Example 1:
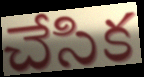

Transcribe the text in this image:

చేసిక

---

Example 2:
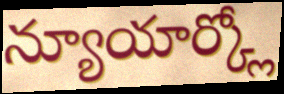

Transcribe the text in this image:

న్యూయార్క్లో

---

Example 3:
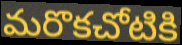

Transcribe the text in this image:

మరొకచోటికి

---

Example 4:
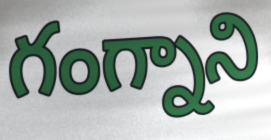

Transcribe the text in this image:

గంగ్నాని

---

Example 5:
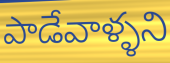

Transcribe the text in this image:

పాడేవాళ్ళని